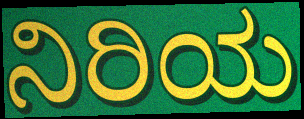
ನಿರಿಯ